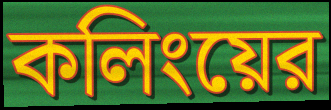
কলিংয়ের